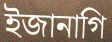
ইজানাগি